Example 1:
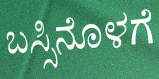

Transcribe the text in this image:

ಬಸ್ಸಿನೊಳಗೆ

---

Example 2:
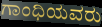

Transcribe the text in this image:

ಗಾಂಧಿಯವರು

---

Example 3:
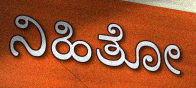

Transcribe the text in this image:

ನಿಹಿತೋ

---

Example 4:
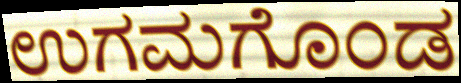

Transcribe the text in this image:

ಉಗಮಗೊಂಡ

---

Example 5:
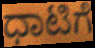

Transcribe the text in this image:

ಧಾಟಿಗೆ